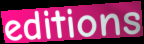
editions